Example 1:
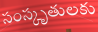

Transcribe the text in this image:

సంస్కృతులకు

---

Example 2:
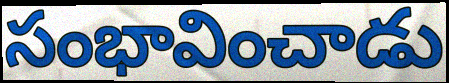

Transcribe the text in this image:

సంభావించాడు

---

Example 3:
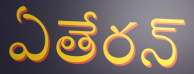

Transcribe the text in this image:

ఏతేరన్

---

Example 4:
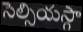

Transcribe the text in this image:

సెల్సియస్గా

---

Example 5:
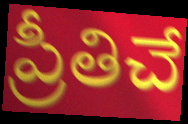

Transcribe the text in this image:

ప్రీతిచే